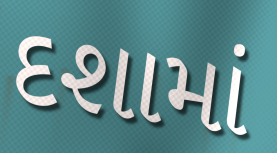
દશામાં